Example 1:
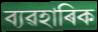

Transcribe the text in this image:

ব্য়ৱহাৰিক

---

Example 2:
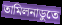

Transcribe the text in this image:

তামিলনাডুতে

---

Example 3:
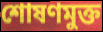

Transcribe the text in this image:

শোষণমুক্ত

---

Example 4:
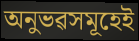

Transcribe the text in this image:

অনুভৱসমূহেই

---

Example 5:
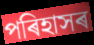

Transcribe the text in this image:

পৰিহাসৰ